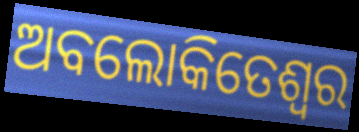
ଅବଲୋକିତେଶ୍ୱର